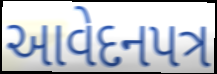
આવેદનપત્ર